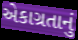
એકાગ્રતાનું